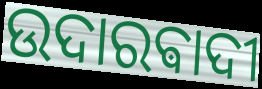
ଉଦାରଵାଦୀ